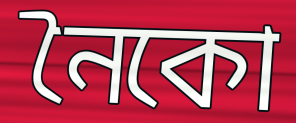
নৈকো